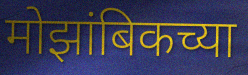
मोझांबिकच्या